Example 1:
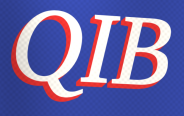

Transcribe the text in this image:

QIB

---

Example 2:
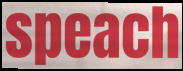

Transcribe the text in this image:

speach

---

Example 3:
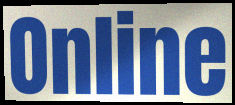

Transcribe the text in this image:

Online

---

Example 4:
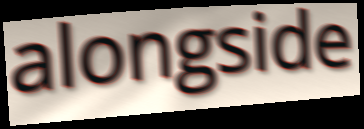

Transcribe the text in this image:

alongside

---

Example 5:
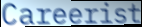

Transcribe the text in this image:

Careerist